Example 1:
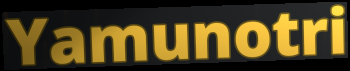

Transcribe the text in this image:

Yamunotri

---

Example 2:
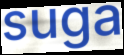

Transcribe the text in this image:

suga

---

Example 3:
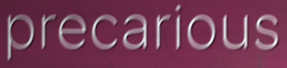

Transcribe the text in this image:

precarious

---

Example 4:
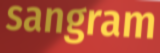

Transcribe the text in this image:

sangram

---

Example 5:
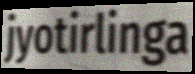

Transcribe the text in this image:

jyotirlinga